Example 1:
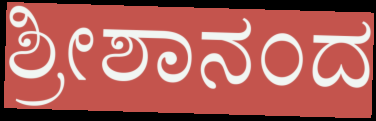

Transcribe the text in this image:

ಶ್ರೀಶಾನಂದ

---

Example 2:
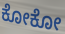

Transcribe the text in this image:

ಕೋಕೋ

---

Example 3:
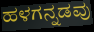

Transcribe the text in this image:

ಹಳಗನ್ನಡವು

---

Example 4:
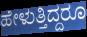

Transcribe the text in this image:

ಹೇಳುತ್ತಿದ್ದರೂ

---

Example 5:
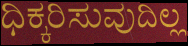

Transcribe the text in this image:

ಧಿಕ್ಕರಿಸುವುದಿಲ್ಲ